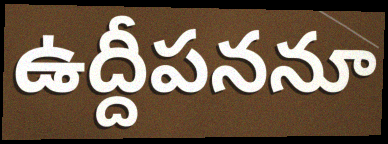
ఉద్దీపననూ